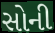
સોની